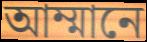
আম্মানে